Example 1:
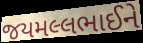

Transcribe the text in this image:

જયમલ્લભાઈને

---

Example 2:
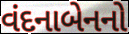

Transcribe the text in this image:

વંદનાબેનનો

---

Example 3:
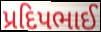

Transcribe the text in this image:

પ્રદિપભાઈ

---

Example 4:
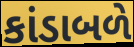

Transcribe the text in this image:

કાંડાબળે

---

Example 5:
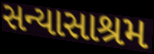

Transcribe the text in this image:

સન્યાસાશ્રમ